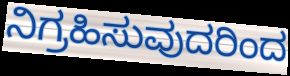
ನಿಗ್ರಹಿಸುವುದರಿಂದ